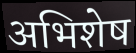
अभिशेष